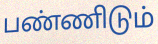
பண்ணிடும்